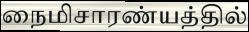
நைமிசாரண்யத்தில்